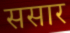
ससार